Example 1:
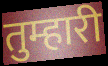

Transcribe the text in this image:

तुम्हारी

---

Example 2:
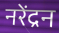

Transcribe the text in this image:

नरेंद्रन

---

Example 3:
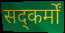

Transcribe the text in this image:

सद्कर्मों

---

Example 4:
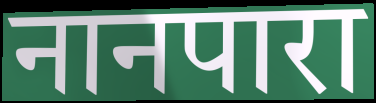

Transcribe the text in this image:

नानपारा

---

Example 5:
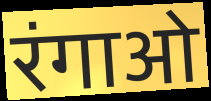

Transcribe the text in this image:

रंगाओ